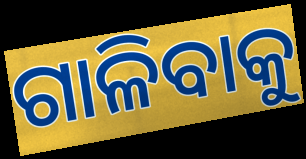
ଗାଳିବାକୁ